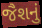
જૈશનું